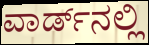
ವಾರ್ಡ್‌ನಲ್ಲಿ